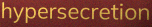
hypersecretion